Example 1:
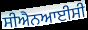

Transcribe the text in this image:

ਸੀਐਨਆਈਸੀ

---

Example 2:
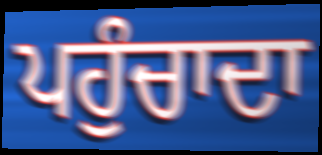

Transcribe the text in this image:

ਪਹੁੰਚਾਦਾ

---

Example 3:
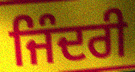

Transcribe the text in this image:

ਜਿੰਦਰੀ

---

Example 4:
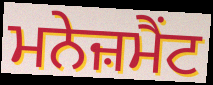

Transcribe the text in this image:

ਮਨੇਜ਼ਮੈਂਟ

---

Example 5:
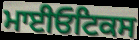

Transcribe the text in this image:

ਮਾਈਓਟਿਕਸ